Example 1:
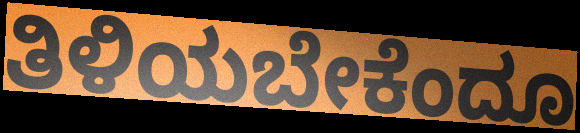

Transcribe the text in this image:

ತಿಳಿಯಬೇಕೆಂದೂ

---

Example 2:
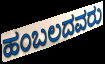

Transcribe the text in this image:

ಹಂಬಲದವರು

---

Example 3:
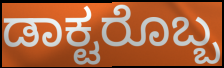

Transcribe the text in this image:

ಡಾಕ್ಟರೊಬ್ಬ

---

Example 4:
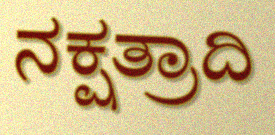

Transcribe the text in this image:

ನಕ್ಷತ್ರಾದಿ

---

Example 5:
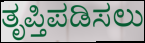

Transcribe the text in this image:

ತೃಪ್ತಿಪಡಿಸಲು